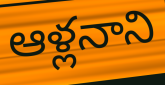
ఆళ్లనాని